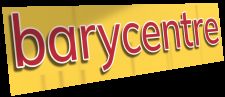
barycentre